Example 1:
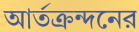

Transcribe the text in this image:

আর্তক্রন্দনের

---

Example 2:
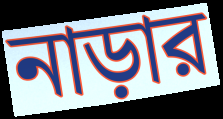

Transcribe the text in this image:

নাড়ার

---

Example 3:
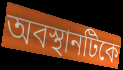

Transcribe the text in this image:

অবস্থানটিকে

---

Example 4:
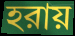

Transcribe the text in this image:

হরায়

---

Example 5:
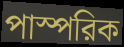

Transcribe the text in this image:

পাস্পরিক